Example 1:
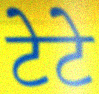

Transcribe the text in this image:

टेटे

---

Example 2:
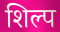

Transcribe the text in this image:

शिल्प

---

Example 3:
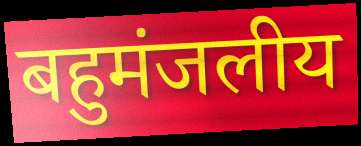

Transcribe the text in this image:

बहुमंजलीय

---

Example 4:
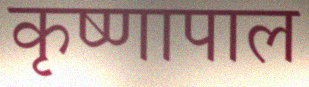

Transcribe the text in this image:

कृष्णापाल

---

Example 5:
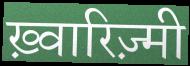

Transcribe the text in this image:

ख़्वारिज़्मी